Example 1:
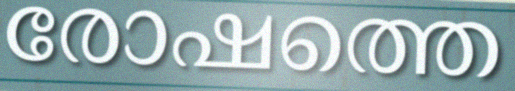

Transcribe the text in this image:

രോഷത്തെ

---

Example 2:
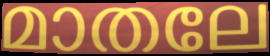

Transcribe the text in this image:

മാതലേ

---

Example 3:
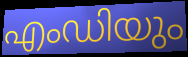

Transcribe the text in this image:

എംഡിയും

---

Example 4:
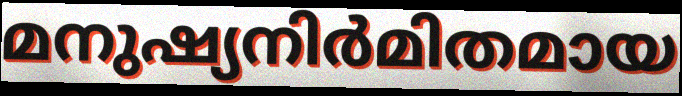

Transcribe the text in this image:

മനുഷ്യനിർമിതമായ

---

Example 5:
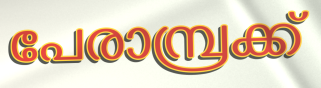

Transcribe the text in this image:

പേരാമ്പ്രക്ക്